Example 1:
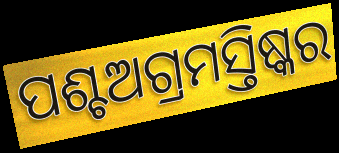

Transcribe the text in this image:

ପଶ୍ଚଅଗ୍ରମସ୍ତିଷ୍କର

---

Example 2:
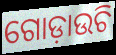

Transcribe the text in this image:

ଗୋଡ଼ାଉଚି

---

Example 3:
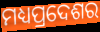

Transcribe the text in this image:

ମଧ୍ଯପ୍ରଦେଶର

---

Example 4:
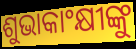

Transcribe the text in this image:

ଶୁଭାକାଂକ୍ଷୀଙ୍କୁ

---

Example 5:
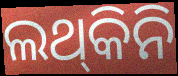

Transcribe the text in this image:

ଲଥ୍‍କିନି